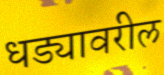
धड्यावरील